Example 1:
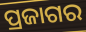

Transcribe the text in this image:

ପ୍ରଜାଗର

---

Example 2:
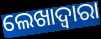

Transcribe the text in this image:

ଲେଖାଦ୍ୱାରା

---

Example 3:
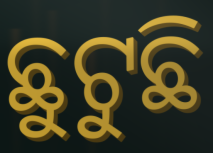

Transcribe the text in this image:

ଛୁଟୁଛି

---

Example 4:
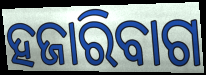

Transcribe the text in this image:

ହଜାରିବାଗ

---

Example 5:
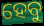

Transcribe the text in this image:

ହେବୁ